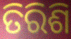
ତିରିଶି